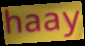
haay